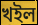
খইল